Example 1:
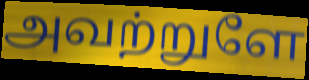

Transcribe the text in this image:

அவற்றுளே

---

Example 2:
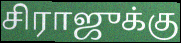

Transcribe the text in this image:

சிராஜுக்கு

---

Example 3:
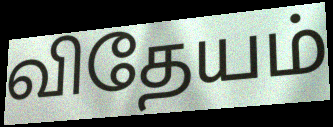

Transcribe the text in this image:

விதேயம்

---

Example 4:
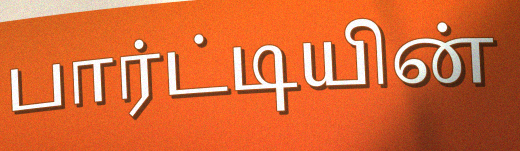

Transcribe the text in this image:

பார்ட்டியின்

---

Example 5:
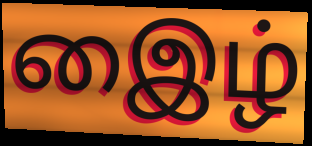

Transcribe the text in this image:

இைழ்